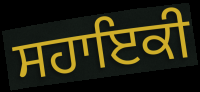
ਸਹਾਇਕੀ